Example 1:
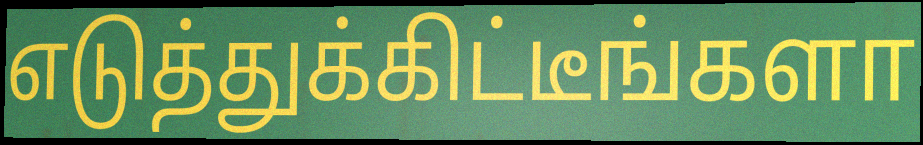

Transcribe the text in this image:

எடுத்துக்கிட்டீங்களா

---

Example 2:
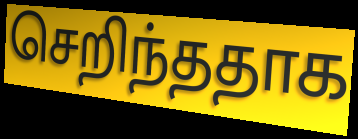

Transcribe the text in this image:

செறிந்ததாக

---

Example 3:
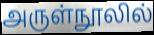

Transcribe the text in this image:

அருள்நூலில்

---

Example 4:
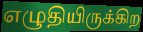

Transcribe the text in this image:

எழுதியிருக்கிற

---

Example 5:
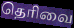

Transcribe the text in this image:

தெரிவை